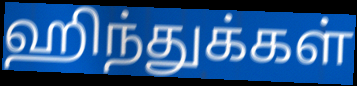
ஹிந்துக்கள்